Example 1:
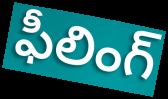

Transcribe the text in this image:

ఫీలింగ్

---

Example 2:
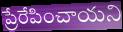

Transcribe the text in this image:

ప్రేరేపించాయని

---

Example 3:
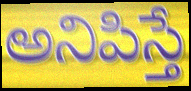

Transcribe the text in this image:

అనిపిస్తే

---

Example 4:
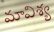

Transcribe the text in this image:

మావిశ్య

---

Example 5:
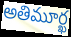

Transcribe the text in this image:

అతిమూర్ఖ